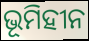
ଭୂମିହୀନ